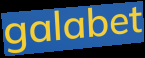
galabet